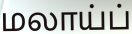
மலாய்ப்